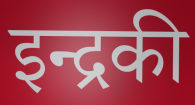
इन्द्रकी